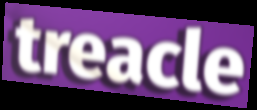
treacle